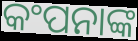
କଂପନାଙ୍କ